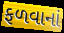
ફળવાનાં